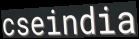
cseindia